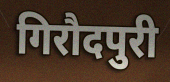
गिरौदपुरी